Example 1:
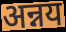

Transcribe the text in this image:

अन्नय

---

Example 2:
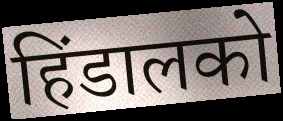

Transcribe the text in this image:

हिंडालको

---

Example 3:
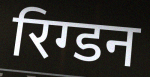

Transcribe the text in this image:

रिग्डन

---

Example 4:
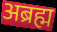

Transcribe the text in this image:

अब्रह्म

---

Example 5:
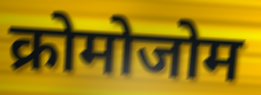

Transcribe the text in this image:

क्रोमोजोम